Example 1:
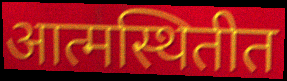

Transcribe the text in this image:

आत्मस्थितीत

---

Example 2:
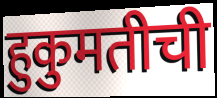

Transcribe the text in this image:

हुकुमतीची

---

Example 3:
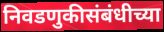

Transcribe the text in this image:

निवडणुकीसंबंधीच्या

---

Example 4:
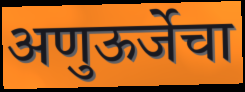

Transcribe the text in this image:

अणुऊर्जेचा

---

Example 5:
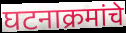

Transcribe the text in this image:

घटनाक्रमांचे